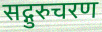
सद्गुरुचरण